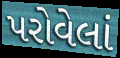
પરોવેલાં